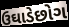
ઉઘાડેછોગ